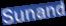
Sunand